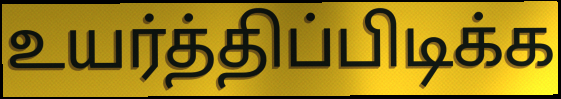
உயர்த்திப்பிடிக்க